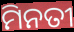
ମିନତୀ